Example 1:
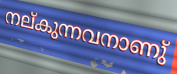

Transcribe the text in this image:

നല്കുന്നവനാണു്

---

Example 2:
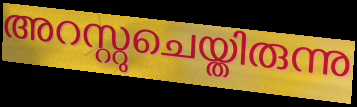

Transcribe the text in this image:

അറസ്റ്റുചെയ്തിരുന്നു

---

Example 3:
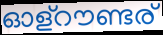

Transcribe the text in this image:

ഓള്റൗണ്ടര്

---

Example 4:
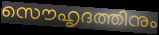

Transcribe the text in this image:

സൌഹൃദത്തിനും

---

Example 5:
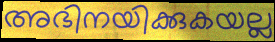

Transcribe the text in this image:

അഭിനയിക്കുകയല്ല